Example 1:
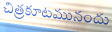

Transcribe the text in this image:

చిత్రకూటమునందు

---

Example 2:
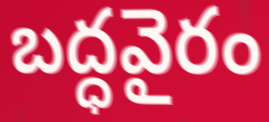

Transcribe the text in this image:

బద్ధవైరం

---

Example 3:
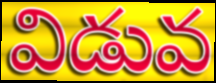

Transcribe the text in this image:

విడువ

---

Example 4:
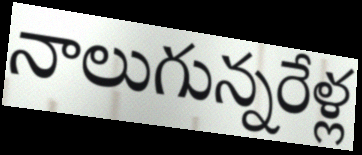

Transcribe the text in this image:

నాలుగున్నరేళ్ల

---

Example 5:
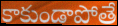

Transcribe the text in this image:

కాకుండాపోతే